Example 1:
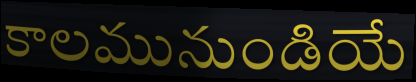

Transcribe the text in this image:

కాలమునుండియే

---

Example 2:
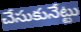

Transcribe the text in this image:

చేసుకునేట్టు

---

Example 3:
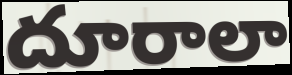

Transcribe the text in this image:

దూరాలా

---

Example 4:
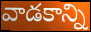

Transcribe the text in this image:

వాడకాన్ని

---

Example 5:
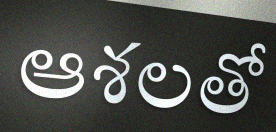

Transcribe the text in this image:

ఆశలతో